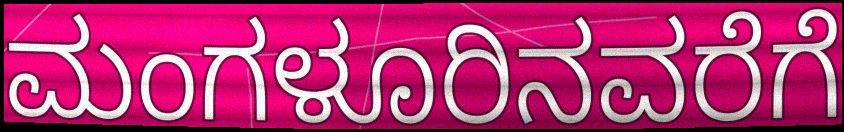
ಮಂಗಳೂರಿನವರೆಗೆ